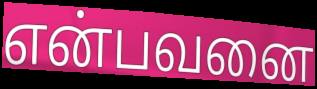
என்பவனை